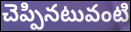
చెప్పినటువంటి